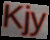
Kjy